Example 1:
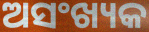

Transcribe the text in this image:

ଅସଂଖ୍ୟକ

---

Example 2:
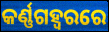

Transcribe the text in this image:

କର୍ଣ୍ଣଗହ୍ଵରରେ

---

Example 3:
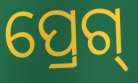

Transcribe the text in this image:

ପ୍ରେଗ୍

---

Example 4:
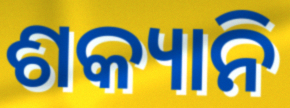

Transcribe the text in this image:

ଶକ୍ୟାନି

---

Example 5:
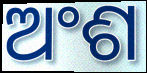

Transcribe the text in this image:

ଅଂଶ